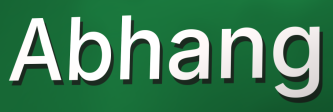
Abhang